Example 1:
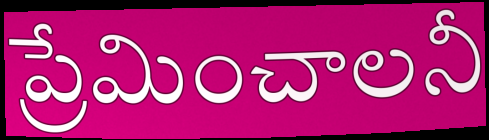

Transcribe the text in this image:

ప్రేమించాలనీ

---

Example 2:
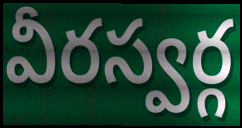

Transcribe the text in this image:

వీరస్వర్గ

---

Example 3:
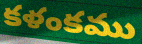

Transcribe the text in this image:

కళంకము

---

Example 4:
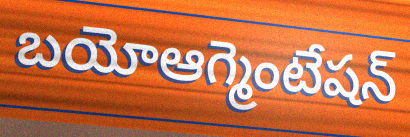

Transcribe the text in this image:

బయోఆగ్మెంటేషన్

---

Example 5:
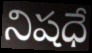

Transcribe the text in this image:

నిషధే